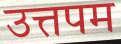
उत्तपम